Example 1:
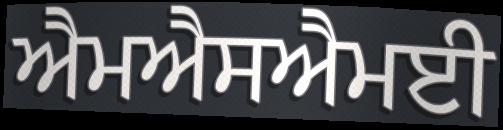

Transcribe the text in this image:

ਐਮਐਸਐਮਈ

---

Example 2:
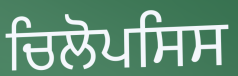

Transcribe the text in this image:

ਚਿਲੋਪਸਿਸ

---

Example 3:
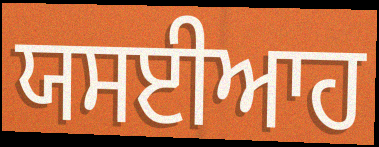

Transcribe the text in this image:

ਯਸਈਆਹ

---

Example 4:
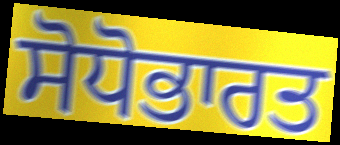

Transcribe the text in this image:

ਸੋਧੋਭਾਰਤ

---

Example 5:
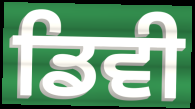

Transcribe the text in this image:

ਡਿਵੀ